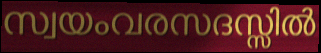
സ്വയംവരസദസ്സിൽ